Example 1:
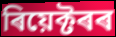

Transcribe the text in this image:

ৰিয়েক্টৰৰ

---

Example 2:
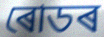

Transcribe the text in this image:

ৰোডৰ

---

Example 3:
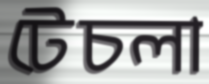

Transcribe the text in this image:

টেচলা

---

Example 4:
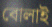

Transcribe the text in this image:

বোলাই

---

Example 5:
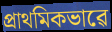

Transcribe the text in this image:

প্ৰাথমিকভাৱে